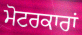
ਮੋਟਰਕਾਰਾਂ